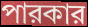
পারকার